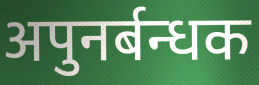
अपुनर्बन्धक